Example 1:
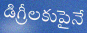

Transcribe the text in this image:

డిగ్రీలకుపైనే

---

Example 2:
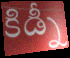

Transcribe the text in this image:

కిడ్నీ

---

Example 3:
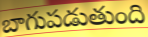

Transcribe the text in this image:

బాగుపడుతుంది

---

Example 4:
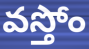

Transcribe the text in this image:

వస్తోం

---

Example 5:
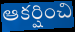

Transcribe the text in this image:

ఆకర్షించి